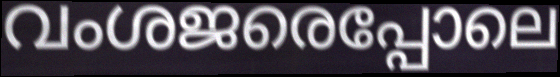
വംശജരെപ്പോലെ